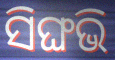
ସିଙ୍ଘଭି